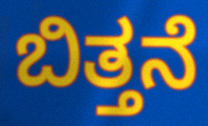
ಬಿತ್ತನೆ